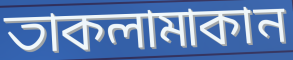
তাকলামাকান